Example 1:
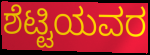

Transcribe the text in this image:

ಶೆಟ್ಟಿಯವರ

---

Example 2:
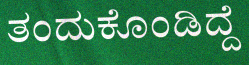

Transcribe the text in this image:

ತಂದುಕೊಂಡಿದ್ದೆ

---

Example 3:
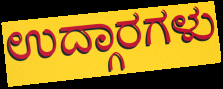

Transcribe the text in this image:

ಉದ್ಗಾರಗಳು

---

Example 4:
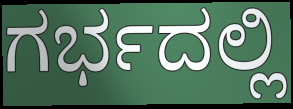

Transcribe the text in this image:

ಗರ್ಭದಲ್ಲಿ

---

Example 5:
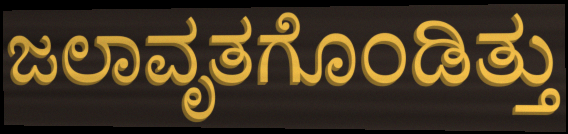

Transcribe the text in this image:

ಜಲಾವೃತಗೊಂಡಿತ್ತು